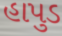
હાપુડ